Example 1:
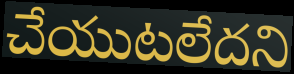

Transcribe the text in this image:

చేయుటలేదని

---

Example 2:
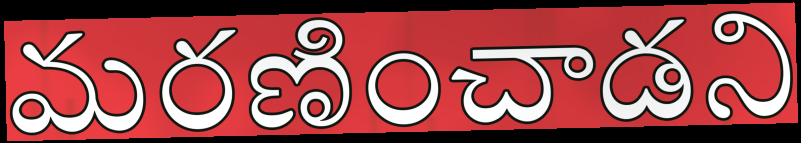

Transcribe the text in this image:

మరణించాడని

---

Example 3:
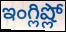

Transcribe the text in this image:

ఇంగ్లిష్లో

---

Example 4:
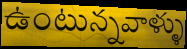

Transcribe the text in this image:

ఉంటున్నవాళ్ళు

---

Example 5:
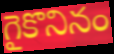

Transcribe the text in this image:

గైకొనినం